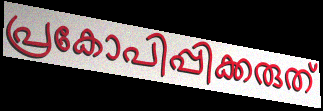
പ്രകോപിപ്പിക്കരുത്